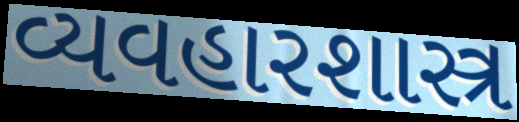
વ્યવહારશાસ્ત્ર